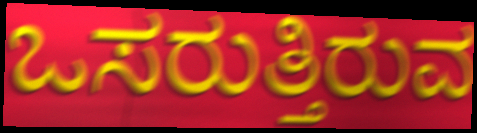
ಒಸರುತ್ತಿರುವ